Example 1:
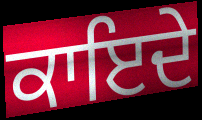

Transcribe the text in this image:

ਕਾਇਦੇ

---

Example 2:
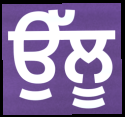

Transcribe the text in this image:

ਉੱਲੂ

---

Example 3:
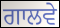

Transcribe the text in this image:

ਗਾਲਵੇ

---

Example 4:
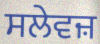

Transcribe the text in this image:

ਸਲੇਵਜ਼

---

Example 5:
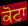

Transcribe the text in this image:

ਕੋਟਾ